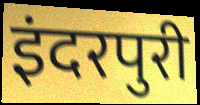
इंदरपुरी